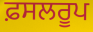
ਫ਼ਸਲਰੂਪ